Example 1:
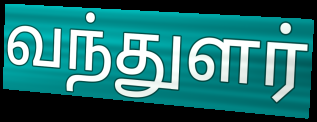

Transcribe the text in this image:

வந்துளர்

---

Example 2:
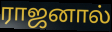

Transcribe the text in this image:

ராஜனால்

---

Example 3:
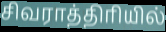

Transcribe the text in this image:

சிவராத்திரியில்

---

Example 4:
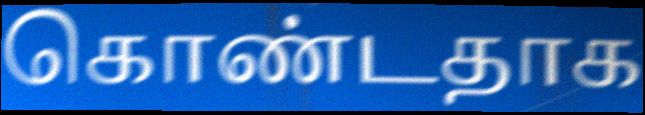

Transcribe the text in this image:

கொண்டதாக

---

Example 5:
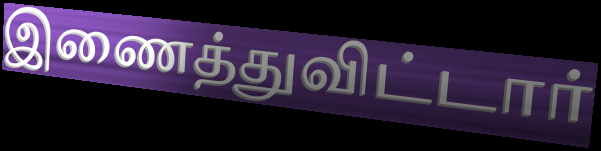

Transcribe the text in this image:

இணைத்துவிட்டார்